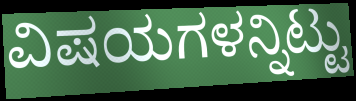
ವಿಷಯಗಳನ್ನಿಟ್ಟು